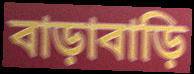
বাড়াবাড়ি